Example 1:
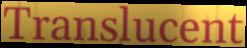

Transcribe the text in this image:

Translucent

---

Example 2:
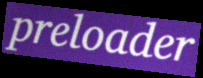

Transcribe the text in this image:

preloader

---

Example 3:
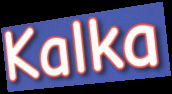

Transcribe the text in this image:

Kalka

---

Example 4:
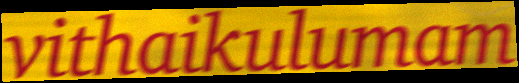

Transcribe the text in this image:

vithaikulumam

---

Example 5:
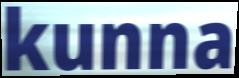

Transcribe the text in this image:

kunna